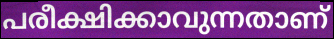
പരീക്ഷിക്കാവുന്നതാണ്